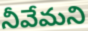
నీవేమని